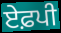
ਏਫ਼ਪੀ